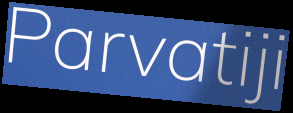
Parvatiji